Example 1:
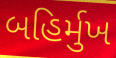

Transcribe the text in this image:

બહિર્મુખ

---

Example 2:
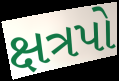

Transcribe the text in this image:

ક્ષત્રપો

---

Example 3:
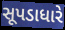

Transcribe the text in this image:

સૂપડાધારે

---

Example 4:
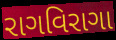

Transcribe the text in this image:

રાગવિરાગા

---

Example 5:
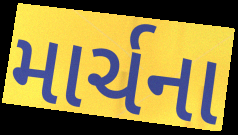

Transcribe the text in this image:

માર્ચના